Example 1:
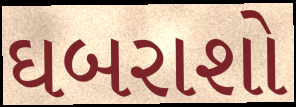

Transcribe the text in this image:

ઘબરાશો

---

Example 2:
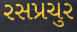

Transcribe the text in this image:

રસપ્રચુર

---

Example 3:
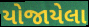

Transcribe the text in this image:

યોજાયેલા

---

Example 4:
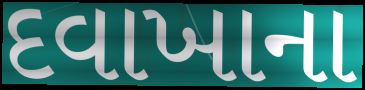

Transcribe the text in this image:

દવાખાના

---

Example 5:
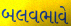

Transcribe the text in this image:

બલવભાવે